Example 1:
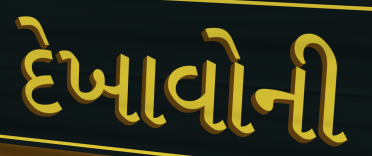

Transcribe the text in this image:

દેખાવોની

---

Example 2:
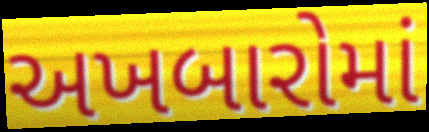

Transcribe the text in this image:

અખબારોમાં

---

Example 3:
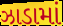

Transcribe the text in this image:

ઝાડામાં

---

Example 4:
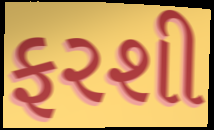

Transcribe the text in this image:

ફરશી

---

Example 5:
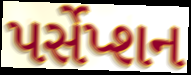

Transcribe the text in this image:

પર્સેપ્શન